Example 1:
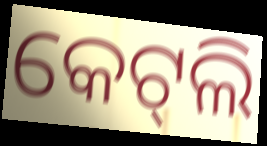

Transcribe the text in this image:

କେଟ୍‌ଲି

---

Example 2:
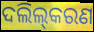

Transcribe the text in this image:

ଦଲିଲ୍‌କରଣ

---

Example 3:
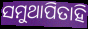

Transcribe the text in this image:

ସମୁଥାପିତାହି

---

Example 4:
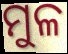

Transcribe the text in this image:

ମୁଳ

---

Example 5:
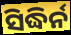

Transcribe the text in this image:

ସିଦ୍ଧିର୍ନ